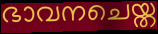
ഭാവനചെയ്ത